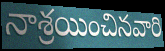
నాశ్రయించినవారి